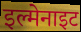
इल्मेनाइट